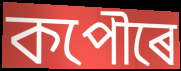
কপৌৰে